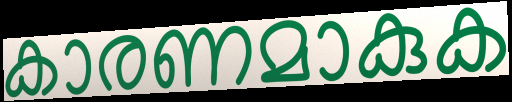
കാരണമാകുക